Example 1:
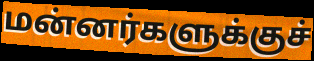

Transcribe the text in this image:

மன்னர்களுக்குச்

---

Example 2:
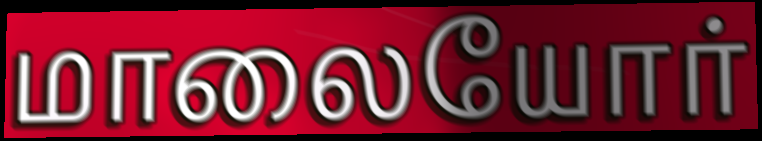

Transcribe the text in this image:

மாலையோர்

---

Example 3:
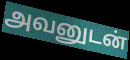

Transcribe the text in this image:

அவனுடன்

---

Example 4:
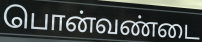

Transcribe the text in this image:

பொன்வண்டை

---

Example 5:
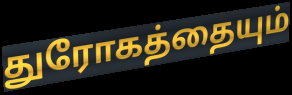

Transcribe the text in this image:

துரோகத்தையும்